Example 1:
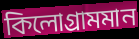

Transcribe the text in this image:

কিলোগ্ৰামমান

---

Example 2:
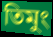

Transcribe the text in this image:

তিমুং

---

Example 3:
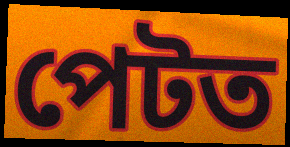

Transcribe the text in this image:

পেটত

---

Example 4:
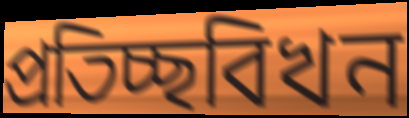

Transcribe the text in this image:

প্ৰতিচ্ছবিখন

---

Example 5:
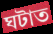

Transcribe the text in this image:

ঘটাত